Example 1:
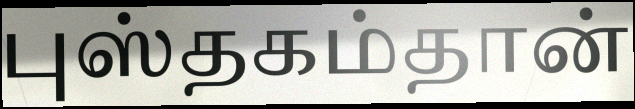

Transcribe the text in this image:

புஸ்தகம்தான்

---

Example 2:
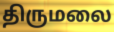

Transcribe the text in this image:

திருமலை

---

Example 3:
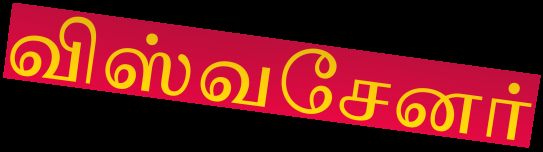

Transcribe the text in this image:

விஸ்வசேனர்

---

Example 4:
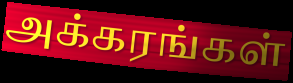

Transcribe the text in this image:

அக்கரங்கள்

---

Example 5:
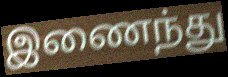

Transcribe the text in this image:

இணைந்து